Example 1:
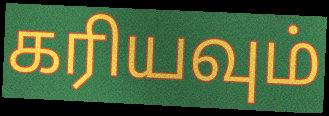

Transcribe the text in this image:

கரியவும்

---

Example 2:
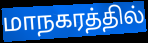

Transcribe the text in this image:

மாநகரத்தில்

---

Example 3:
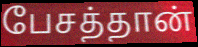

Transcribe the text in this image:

பேசத்தான்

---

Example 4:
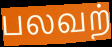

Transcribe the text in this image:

பலவற்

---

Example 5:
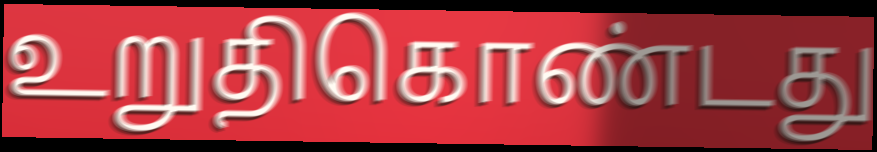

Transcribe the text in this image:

உறுதிகொண்டது